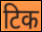
टिक